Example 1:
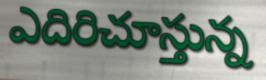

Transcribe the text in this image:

ఎదిరిచూస్తున్న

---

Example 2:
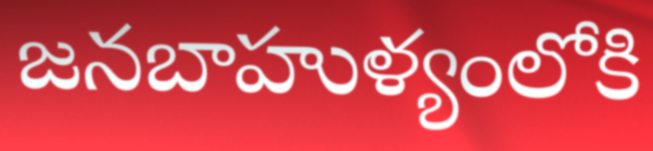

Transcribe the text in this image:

జనబాహుళ్యంలోకి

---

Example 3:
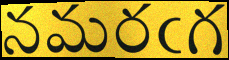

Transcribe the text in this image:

నమరఁగ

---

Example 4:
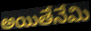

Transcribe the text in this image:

అయితేనేమి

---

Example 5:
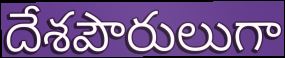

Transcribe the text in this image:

దేశపౌరులుగా